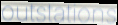
outstations